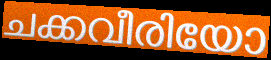
ചക്കവീരിയോ